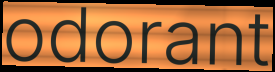
odorant